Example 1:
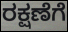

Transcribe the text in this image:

ರಕ್ಷಣೆಗೆ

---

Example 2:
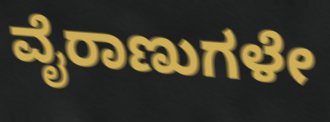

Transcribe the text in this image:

ವೈರಾಣುಗಳೇ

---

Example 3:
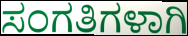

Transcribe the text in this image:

ಸಂಗತಿಗಳಾಗಿ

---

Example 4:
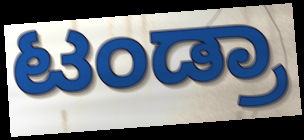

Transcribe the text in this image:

ಟಂಡ್ರಾ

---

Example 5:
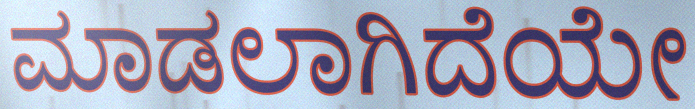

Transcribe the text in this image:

ಮಾಡಲಾಗಿದೆಯೇ